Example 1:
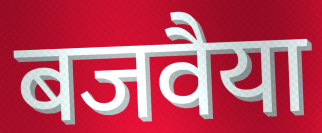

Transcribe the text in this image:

बजवैया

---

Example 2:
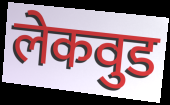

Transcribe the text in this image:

लेकवुड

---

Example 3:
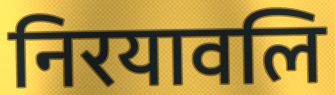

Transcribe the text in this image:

निरयावलि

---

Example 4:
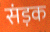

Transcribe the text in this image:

संड़क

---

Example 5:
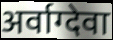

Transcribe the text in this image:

अर्वाग्देवा